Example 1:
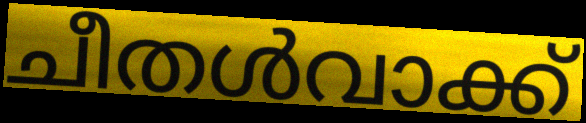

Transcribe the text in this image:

ചീതൾവാക്ക്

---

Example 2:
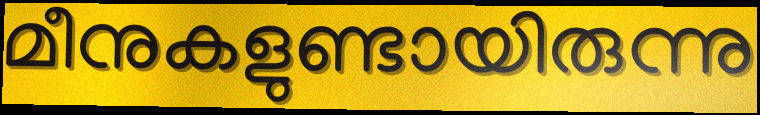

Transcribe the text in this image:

മീനുകളുണ്ടായിരുന്നു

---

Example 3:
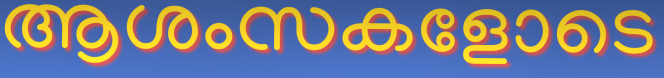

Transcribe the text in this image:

ആശംസകളോടെ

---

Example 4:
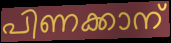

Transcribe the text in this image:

പിണക്കാന്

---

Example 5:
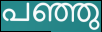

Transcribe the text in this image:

പഞ്ഞു